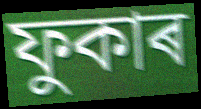
ফুকাৰ